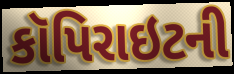
કૉપિરાઇટની